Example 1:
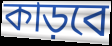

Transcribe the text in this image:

কাড়বে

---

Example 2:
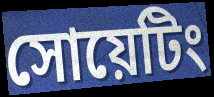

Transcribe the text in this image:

সোয়েটিং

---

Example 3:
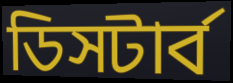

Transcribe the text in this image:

ডিসটার্ব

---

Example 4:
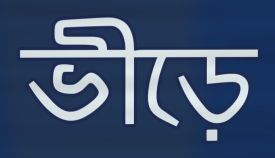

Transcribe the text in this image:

ভীড়ে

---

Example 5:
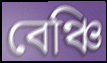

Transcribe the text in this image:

বেঞ্চি